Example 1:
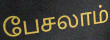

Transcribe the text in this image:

பேசலாம்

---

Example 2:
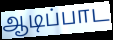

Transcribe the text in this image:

ஆடிப்பாட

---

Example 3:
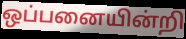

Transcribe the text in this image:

ஒப்பனையின்றி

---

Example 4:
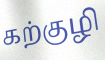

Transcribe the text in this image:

கற்குழி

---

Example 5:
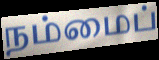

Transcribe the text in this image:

நம்மைப்